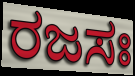
ರಜಸಃ